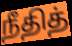
நீதித்